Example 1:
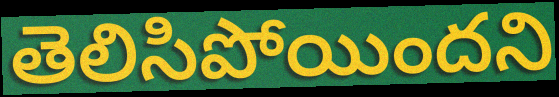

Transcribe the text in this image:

తెలిసిపోయిందని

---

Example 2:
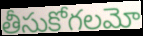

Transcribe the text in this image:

తీసుకోగలమో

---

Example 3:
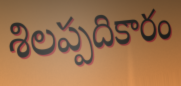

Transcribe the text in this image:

శిలప్పదికారం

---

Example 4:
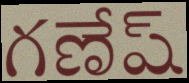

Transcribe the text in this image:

గణేష్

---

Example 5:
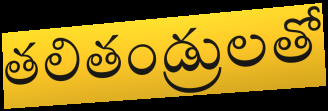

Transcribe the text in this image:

తలితండ్రులతో